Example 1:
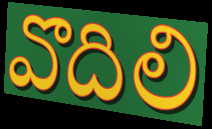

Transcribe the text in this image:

వొదిలి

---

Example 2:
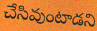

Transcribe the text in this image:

చేసివుంటాడని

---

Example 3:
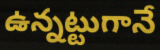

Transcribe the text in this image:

ఉన్నట్టుగానే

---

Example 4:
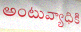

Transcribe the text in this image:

అంటువ్యాధికి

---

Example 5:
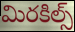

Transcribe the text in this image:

మిరకిల్స్